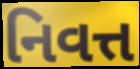
નિવત્ત